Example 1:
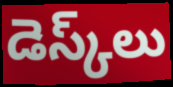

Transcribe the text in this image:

డెస్క్‌లు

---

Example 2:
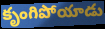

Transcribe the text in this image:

కృంగిపోయాడు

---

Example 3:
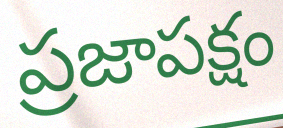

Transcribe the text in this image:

ప్రజాపక్షం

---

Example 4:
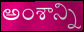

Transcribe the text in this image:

అంశాన్ని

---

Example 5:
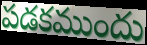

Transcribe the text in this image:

పడకముందు